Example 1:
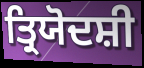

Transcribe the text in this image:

ਤ੍ਰਿਯੋਦਸ਼ੀ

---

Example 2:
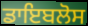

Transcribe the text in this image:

ਡਾਇਬਲੋਸ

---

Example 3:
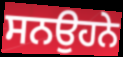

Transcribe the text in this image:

ਸਨਉਹਨੇ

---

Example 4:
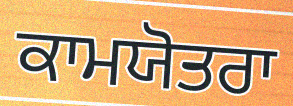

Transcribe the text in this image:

ਕਾਮਯੋਤਰਾ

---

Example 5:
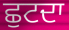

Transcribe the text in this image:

ਛੁਟਦਾ